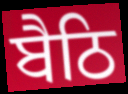
ਬੈਠਿ